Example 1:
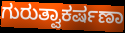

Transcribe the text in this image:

ಗುರುತ್ವಾಕರ್ಷಣಾ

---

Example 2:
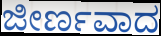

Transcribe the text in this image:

ಜೀರ್ಣವಾದ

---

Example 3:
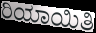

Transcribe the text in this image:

ರಿಯಾಯಿತಿ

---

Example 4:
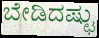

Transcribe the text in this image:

ಬೇಡಿದಷ್ಟು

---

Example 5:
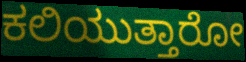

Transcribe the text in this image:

ಕಲಿಯುತ್ತಾರೋ